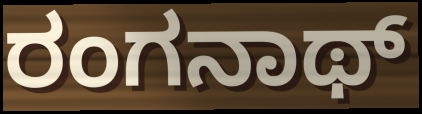
ರಂಗನಾಥ್